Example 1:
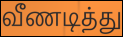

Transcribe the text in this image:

வீணடித்து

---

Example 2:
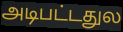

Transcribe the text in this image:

அடிபட்டதுல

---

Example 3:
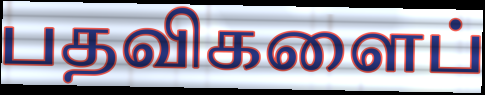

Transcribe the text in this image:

பதவிகளைப்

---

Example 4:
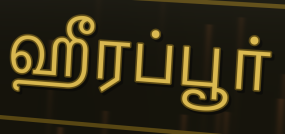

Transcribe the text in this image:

ஹீரப்பூர்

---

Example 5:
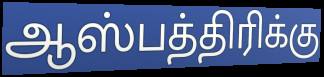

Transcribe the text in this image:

ஆஸ்பத்திரிக்கு